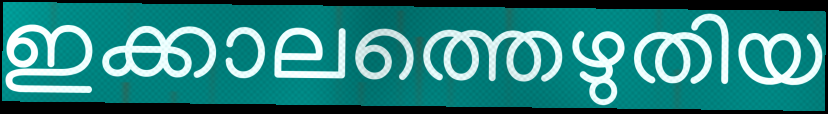
ഇക്കാലത്തെഴുതിയ